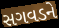
સગવડને